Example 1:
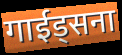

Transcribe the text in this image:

गाईड्सना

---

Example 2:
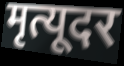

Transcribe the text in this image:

मृत्यूदर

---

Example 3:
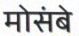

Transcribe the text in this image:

मोसंबे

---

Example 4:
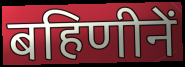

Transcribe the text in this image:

बहिणीनें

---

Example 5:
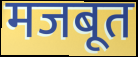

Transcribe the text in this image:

मजबूत